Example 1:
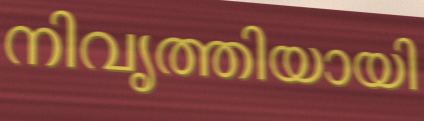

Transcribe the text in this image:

നിവൃത്തിയായി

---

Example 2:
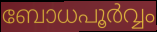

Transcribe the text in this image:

ബോധപൂർവ്വം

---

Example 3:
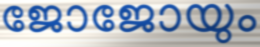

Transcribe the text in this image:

ജോജോയും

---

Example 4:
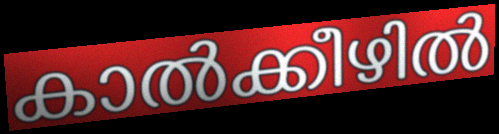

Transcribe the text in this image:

കാൽക്കീഴിൽ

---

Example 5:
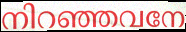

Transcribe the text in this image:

നിറഞ്ഞവനേ